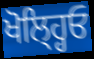
ਖੋਲ੍ਹ੍ਹਿਓ